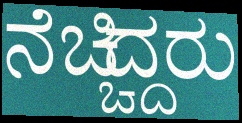
ನೆಚ್ಚಿದ್ದರು